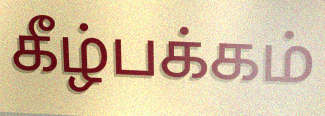
கீழ்பக்கம்